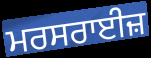
ਮਰਸਰਾਈਜ਼